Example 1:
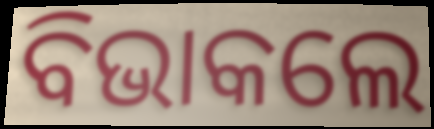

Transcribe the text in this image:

ବିଭାକଲେ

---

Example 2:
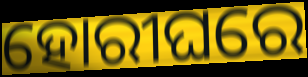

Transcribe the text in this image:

ହୋରୀଘରେ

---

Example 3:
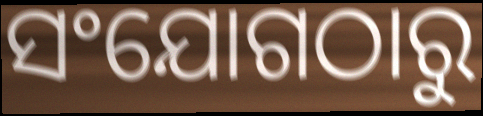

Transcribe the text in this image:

ସଂଯୋଗଠାରୁ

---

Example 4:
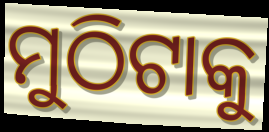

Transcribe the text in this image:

ମୁଠିଟାକୁ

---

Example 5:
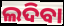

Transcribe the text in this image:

ଲଦିବା